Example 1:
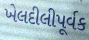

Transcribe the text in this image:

ખેલદીલીપૂર્વક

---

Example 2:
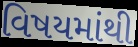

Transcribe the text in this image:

વિષયમાંથી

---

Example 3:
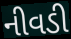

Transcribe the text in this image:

નીવડી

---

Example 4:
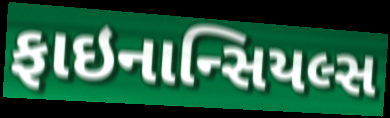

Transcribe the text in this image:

ફાઇનાન્સિયલ્સ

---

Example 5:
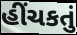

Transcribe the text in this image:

હીંચકતું